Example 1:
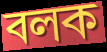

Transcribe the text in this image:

বলক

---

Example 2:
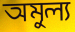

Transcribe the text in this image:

অমুল্য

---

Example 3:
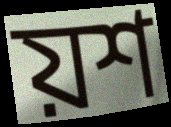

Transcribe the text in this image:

য়শ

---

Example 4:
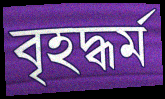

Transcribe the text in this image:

বৃহদ্ধৰ্ম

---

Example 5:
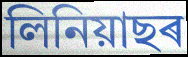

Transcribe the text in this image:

লিনিয়াছৰ